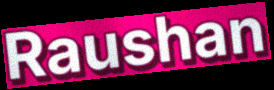
Raushan